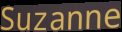
Suzanne